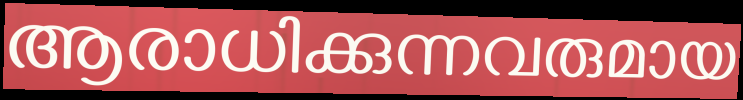
ആരാധിക്കുന്നവരുമായ